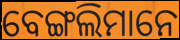
ବେଙ୍ଗଲିମାନେ